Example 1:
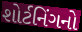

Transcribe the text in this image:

શોર્ટનિંગનો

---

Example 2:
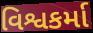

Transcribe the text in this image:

વિશ્વકર્મા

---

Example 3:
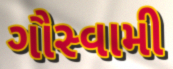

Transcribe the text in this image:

ગૌસ્વામી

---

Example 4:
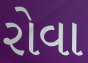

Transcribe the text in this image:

રોવા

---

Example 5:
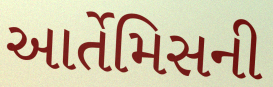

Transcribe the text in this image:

આર્તેમિસની